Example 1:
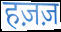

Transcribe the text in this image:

हज़ज़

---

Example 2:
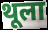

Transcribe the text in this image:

थूला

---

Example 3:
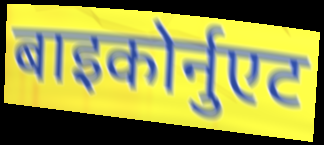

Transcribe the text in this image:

बाइकोर्नुएट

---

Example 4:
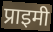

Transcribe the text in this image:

प्राइमी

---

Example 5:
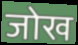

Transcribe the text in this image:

जोख